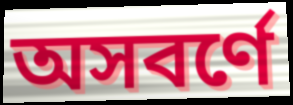
অসবর্ণে